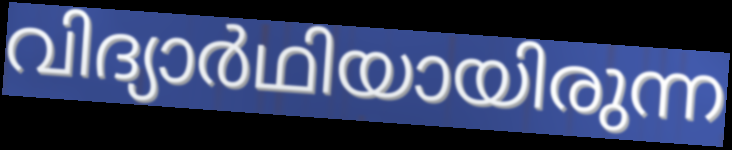
വിദ്യാർഥിയായിരുന്ന